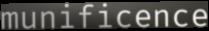
munificence